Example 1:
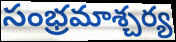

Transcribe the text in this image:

సంభ్రమాశ్చర్య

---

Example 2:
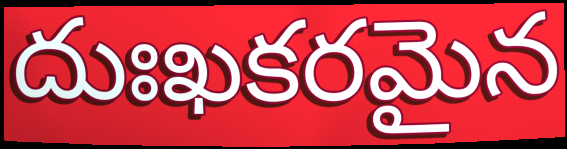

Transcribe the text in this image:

దుఃఖకరమైన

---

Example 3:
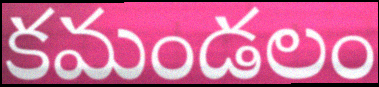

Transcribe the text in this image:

కమండలం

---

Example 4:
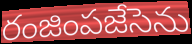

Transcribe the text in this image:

రంజింపజేసెను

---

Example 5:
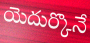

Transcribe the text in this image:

యెదుర్కొనే